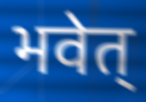
भवेत्